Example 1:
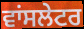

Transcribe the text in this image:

ਵਾਂਸਲੇਟਰ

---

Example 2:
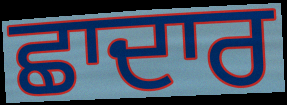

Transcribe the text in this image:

ਛਾਦਾਰ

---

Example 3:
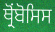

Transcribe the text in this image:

ਥ੍ਰੋਂਬੋਸਿਸ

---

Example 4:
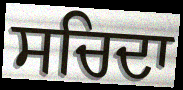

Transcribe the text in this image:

ਸਚਿਦਾ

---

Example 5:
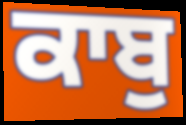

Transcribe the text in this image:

ਕਾਬੁ